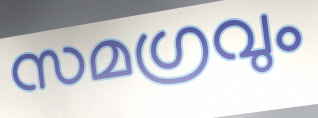
സമഗ്രവും